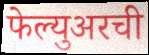
फेल्युअरची